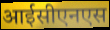
आईसीएनएस